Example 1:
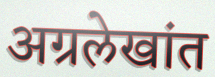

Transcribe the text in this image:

अग्रलेखांत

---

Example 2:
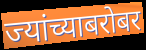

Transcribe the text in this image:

ज्यांच्याबरोबर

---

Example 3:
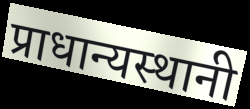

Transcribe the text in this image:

प्राधान्यस्थानी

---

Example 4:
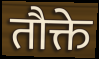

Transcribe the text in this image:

तौक्ते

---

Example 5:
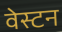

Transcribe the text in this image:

वेस्टन